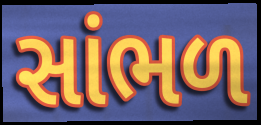
સાંભળ